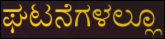
ಘಟನೆಗಳಲ್ಲೂ